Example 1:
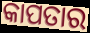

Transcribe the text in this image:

କାପତାର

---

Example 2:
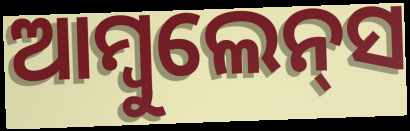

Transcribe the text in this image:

ଆମ୍ବୁଲେନ୍‍ସ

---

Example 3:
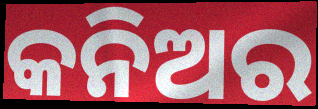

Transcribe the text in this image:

କନିଅର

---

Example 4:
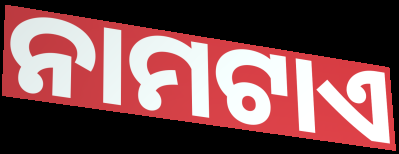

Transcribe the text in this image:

ନାମଟାଏ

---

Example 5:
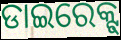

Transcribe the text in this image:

ଡାଇରେକ୍ଟ୍